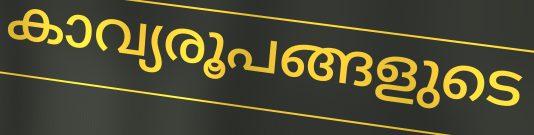
കാവ്യരൂപങ്ങളുടെ